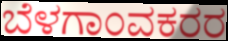
ಬೆಳಗಾಂವಕರರ